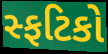
સ્ફટિકો